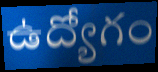
ఉద్యోగం